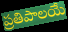
ప్రతిపాలయే